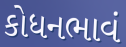
કોધનભાવં